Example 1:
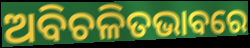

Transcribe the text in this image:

ଅବିଚଳିତଭାବରେ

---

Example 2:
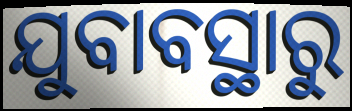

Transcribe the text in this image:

ଯୁବାବସ୍ଥାରୁ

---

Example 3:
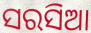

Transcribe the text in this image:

ସରସିଆ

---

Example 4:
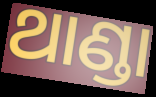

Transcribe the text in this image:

ଥାଣ୍ଡା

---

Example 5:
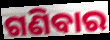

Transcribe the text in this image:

ଗଣିବାର